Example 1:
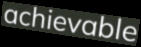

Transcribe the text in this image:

achievable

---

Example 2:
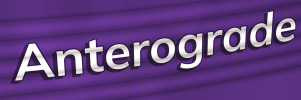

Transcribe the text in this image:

Anterograde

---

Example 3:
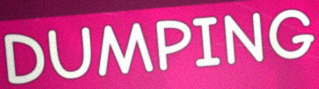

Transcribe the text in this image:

DUMPING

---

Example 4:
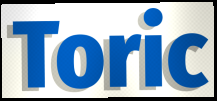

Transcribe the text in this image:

Toric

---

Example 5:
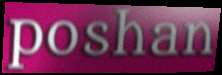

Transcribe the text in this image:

poshan